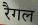
रैगल